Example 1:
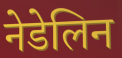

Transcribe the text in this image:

नेडेलिन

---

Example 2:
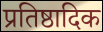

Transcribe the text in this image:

प्रतिष्ठादिक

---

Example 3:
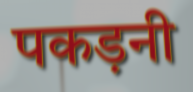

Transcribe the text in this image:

पकड़नी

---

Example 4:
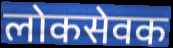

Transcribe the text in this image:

लोकसेवक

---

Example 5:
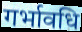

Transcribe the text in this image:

गर्भावधि